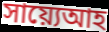
সায়্যেআহ